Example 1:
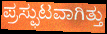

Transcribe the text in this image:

ಪ್ರಸ್ಫುಟವಾಗಿತ್ತು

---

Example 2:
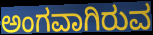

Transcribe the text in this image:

ಅಂಗವಾಗಿರುವ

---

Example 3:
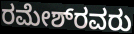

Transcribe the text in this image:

ರಮೇಶ್‌ರವರು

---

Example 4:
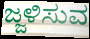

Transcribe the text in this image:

ಜ್ಜಳಿಸುವ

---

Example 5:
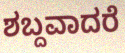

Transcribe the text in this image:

ಶಬ್ದವಾದರೆ